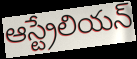
ఆస్ట్రేలియన్